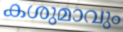
കശുമാവും